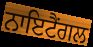
ਨਾਇਟੈਂਗਲ